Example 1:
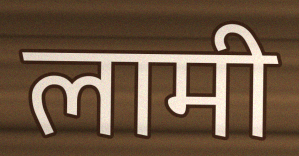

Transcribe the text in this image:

लामी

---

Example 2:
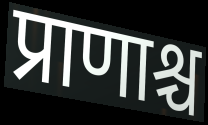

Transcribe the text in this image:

प्राणाश्च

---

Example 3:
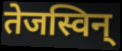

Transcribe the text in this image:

तेजस्विन्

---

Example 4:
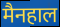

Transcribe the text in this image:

मैनहाल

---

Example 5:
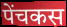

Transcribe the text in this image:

पेंचकस